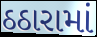
ઠઠારામાં